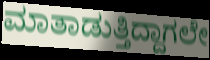
ಮಾತಾಡುತ್ತಿದ್ದಾಗಲೇ